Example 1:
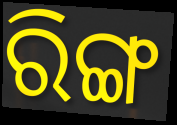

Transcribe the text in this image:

ରିଙ୍ଗ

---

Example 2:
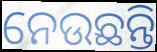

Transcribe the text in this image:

ନେଉଛନ୍ତି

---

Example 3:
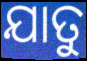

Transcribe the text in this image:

ଯାତୁ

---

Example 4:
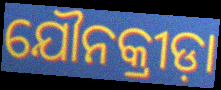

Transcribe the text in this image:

ଯୌନକ୍ରୀଡ଼ା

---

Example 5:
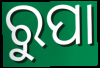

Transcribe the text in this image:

ରୁପା